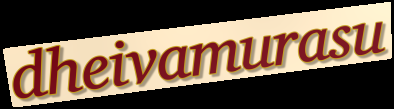
dheivamurasu